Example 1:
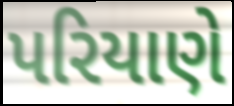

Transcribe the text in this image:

પરિયાણે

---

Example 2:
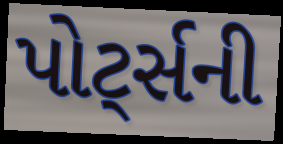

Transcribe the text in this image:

પોર્ટ્સની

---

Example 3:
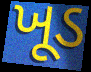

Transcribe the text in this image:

ખૂડ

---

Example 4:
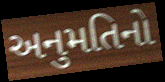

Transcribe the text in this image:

અનુમતિનો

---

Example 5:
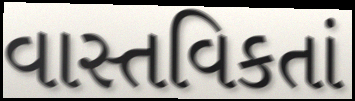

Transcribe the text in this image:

વાસ્તવિકતાં